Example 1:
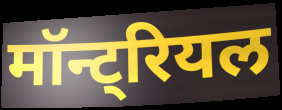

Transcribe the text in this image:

मॉन्ट्रियल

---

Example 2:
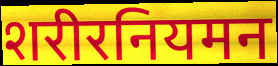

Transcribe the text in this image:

शरीरनियमन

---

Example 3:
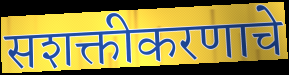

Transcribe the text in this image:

सशक्तीकरणाचे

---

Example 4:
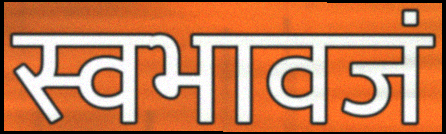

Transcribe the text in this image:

स्वभावजं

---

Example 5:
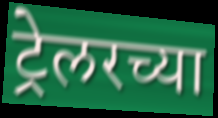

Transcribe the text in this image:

ट्रेलरच्या